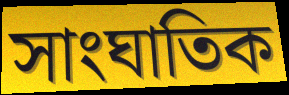
সাংঘাতিক